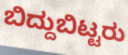
ಬಿದ್ದುಬಿಟ್ಟರು